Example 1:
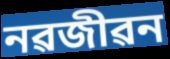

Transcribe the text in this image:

নৱজীৱন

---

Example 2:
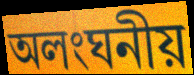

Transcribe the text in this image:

অলংঘনীয়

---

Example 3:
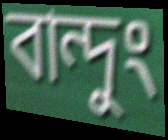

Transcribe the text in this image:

বান্দুং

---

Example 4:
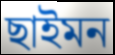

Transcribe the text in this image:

ছাইমন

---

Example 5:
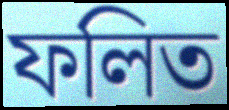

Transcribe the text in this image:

ফলিত